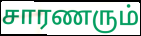
சாரணரும்